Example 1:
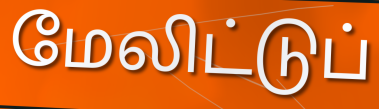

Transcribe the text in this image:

மேலிட்டுப்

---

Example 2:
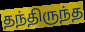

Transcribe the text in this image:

தந்திருந்த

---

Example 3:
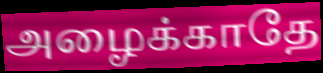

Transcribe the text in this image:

அழைக்காதே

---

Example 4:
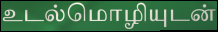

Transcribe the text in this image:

உடல்மொழியுடன்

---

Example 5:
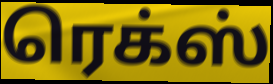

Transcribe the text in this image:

ரெக்ஸ்